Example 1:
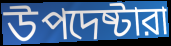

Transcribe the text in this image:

উপদেষ্টারা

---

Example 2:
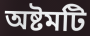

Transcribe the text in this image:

অষ্টমটি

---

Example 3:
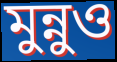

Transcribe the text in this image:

মুন্নুও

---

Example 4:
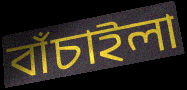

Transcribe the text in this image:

বাঁচাইলা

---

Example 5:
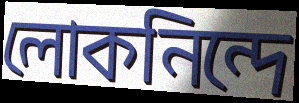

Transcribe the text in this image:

লোকনিন্দে